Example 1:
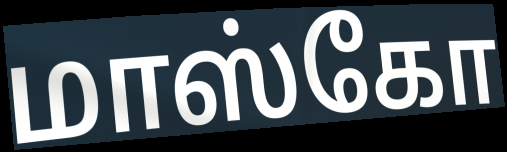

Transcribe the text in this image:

மாஸ்கோ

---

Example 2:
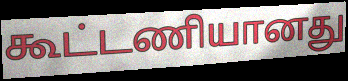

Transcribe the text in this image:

கூட்டணியானது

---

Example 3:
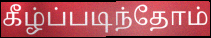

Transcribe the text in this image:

கீழ்ப்படிந்தோம்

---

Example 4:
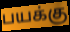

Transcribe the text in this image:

பயக்கு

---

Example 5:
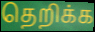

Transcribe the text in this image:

தெறிக்க